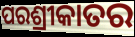
ପରଶ୍ରୀକାତର